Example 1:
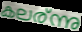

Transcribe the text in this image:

കലര്ന്നു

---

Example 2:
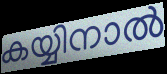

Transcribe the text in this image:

കയ്യിനാൽ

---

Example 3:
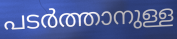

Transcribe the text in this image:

പടർത്താനുള്ള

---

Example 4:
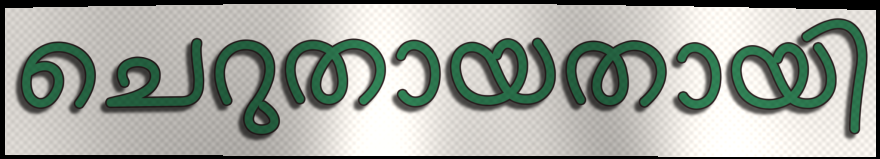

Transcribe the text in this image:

ചെറുതായതായി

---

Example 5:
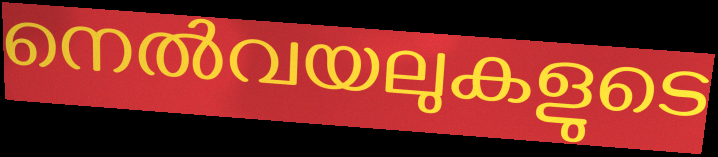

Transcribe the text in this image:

നെൽവയലുകളുടെ